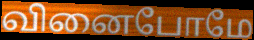
வினைபோமே